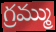
గ్రమ్ము